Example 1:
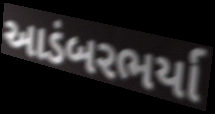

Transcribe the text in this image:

આડંબરભર્યા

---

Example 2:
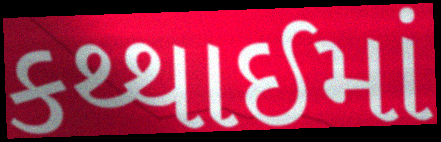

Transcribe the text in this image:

કથ્થાઈમાં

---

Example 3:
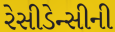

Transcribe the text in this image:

રેસીડેન્સીની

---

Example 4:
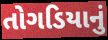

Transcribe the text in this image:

તોગડિયાનું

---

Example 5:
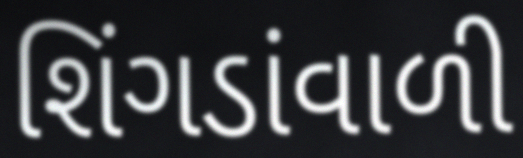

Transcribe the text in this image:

શિંગડાંવાળી